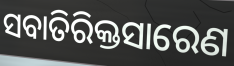
ସବାତିରିକ୍ତସାରେଣ